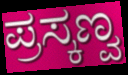
ಪ್ರಸ್ಕಣ್ವ